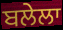
ਬਲੇਲਾ